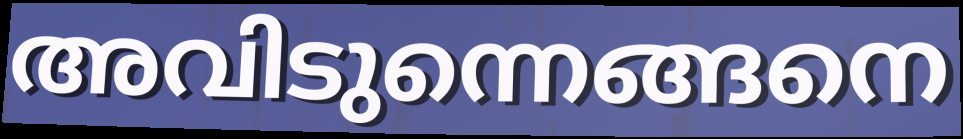
അവിടുന്നെങ്ങനെ